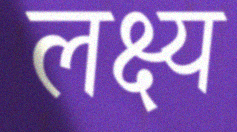
लक्ष्य